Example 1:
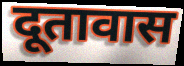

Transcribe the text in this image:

दूतावास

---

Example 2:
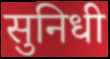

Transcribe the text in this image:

सुनिधी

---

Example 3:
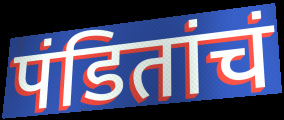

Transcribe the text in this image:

पंडितांचं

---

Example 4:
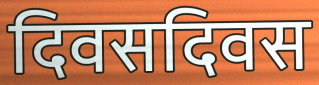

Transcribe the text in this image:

दिवसदिवस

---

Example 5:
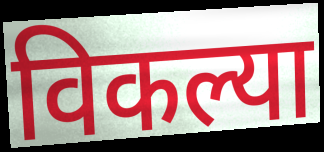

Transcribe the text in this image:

विकल्या